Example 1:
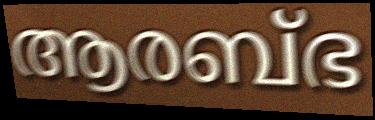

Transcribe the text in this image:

ആരബ്ഭ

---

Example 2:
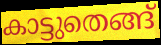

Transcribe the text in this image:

കാട്ടുതെങ്ങ്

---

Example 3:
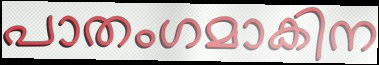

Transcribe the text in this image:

പാതംഗമാകിന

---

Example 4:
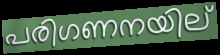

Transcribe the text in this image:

പരിഗണനയില്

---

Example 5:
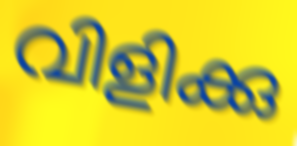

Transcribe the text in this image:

വിളിക്കു